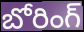
బోరింగ్